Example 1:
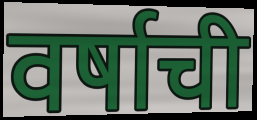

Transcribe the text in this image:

वर्षाची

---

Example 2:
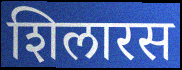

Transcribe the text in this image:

शिलारस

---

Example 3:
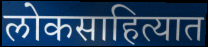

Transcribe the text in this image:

लोकसाहित्यात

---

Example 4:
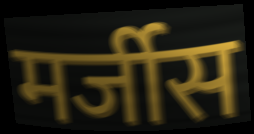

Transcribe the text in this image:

मर्जीस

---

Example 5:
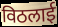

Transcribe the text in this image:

विठलाई